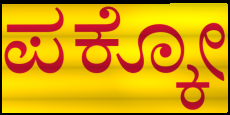
ಪಕ್ಕೋ